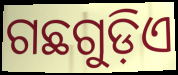
ଗଛଗୁଡ଼ିଏ